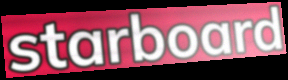
starboard